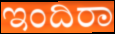
ಇಂದಿರಾ